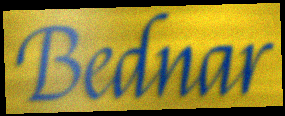
Bednar